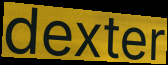
dexter